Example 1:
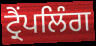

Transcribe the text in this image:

ਟ੍ਰੈਂਪਲਿੰਗ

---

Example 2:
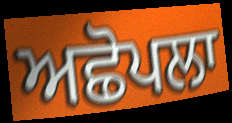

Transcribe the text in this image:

ਅਛੋਪਲਾ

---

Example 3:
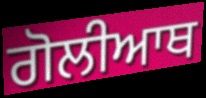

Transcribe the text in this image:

ਗੋਲੀਆਥ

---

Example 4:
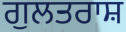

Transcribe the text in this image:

ਗੁਲਤਰਾਸ਼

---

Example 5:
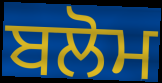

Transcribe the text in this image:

ਬਲੋਮ